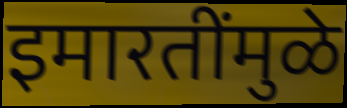
इमारतींमुळे